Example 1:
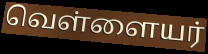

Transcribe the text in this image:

வெள்ளையர்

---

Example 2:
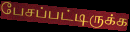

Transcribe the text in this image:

பேசப்பட்டிருக்க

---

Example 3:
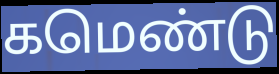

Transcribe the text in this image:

கமெண்டு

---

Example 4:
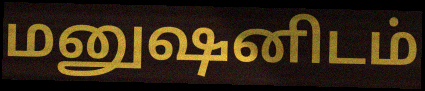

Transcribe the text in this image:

மனுஷனிடம்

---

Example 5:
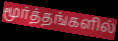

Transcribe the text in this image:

மூர்த்தங்களில்